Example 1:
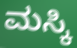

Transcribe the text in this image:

ಮಸ್ಕಿ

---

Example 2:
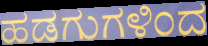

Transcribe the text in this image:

ಹಡಗುಗಳಿಂದ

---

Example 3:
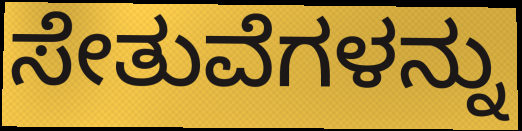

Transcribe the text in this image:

ಸೇತುವೆಗಳನ್ನು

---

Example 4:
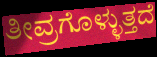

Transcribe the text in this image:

ತೀವ್ರಗೊಳ್ಳುತ್ತದೆ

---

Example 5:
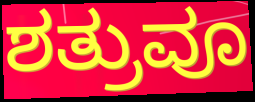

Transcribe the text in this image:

ಶತ್ರುವೂ